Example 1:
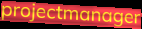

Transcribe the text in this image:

projectmanager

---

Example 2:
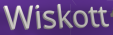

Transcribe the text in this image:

Wiskott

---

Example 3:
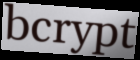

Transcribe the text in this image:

bcrypt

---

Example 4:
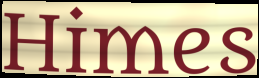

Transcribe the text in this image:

Himes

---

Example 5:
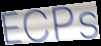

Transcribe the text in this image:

ECPs